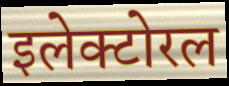
इलेक्टोरल